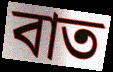
বাত